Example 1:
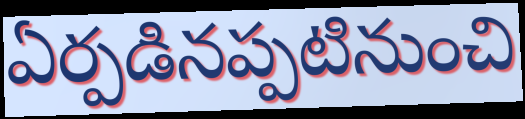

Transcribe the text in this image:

ఏర్పడినప్పటినుంచి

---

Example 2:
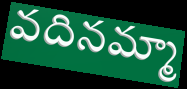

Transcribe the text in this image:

వదినమ్మా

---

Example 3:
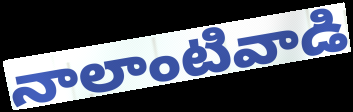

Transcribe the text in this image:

నాలాంటివాడి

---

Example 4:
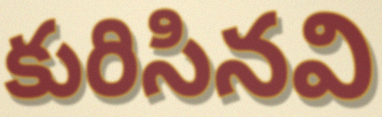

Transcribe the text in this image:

కురిసినవి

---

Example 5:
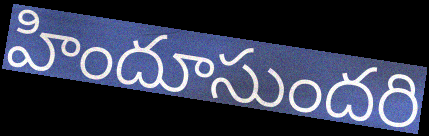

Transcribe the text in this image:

హిందూసుందరి